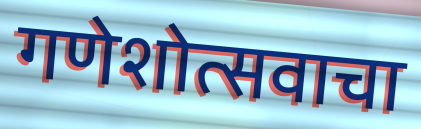
गणेशोत्सवाचा